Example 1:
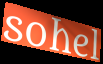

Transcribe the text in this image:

sohel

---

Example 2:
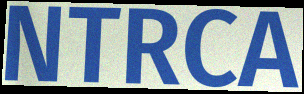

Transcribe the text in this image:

NTRCA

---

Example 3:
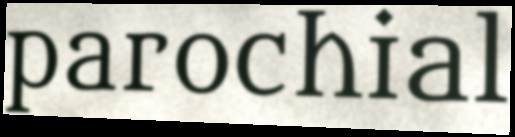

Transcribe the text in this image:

parochial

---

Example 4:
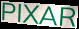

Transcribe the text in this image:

PIXAR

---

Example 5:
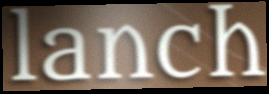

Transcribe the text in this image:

lanch